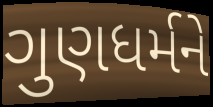
ગુણધર્મને